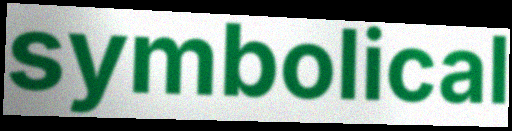
symbolical